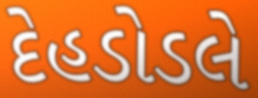
દેહડોડલે